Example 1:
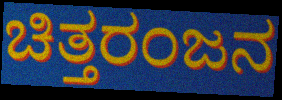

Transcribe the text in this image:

ಚಿತ್ತರಂಜನ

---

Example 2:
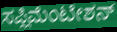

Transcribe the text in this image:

ಸಪ್ಲಿಮೆಂಟೇಶನ್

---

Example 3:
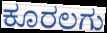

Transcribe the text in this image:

ಕೂರಲಗು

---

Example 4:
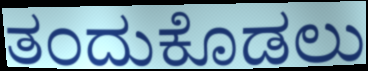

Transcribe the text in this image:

ತಂದುಕೊಡಲು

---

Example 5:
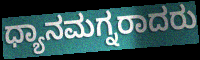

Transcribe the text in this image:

ಧ್ಯಾನಮಗ್ನರಾದರು